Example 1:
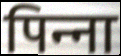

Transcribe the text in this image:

पिन्ना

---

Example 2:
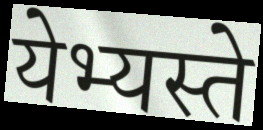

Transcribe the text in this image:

येभ्यस्ते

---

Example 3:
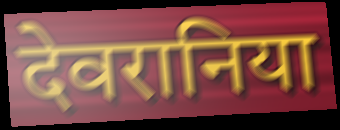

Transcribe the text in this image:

देवरानिया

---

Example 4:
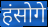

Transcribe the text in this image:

हंसोगे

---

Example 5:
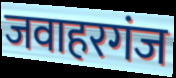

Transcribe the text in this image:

जवाहरगंज